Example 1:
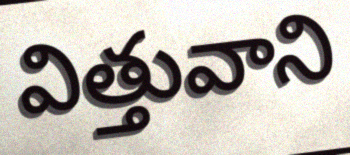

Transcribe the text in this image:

విత్తువాని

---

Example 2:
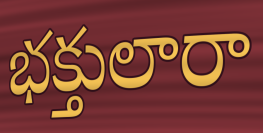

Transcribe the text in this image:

భక్తులారా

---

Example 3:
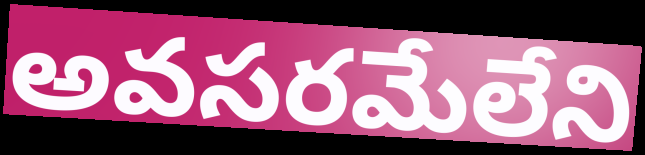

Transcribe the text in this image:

అవసరమేలేని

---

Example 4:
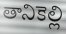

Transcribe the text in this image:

తానికెల్లి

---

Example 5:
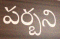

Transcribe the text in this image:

పర్బని